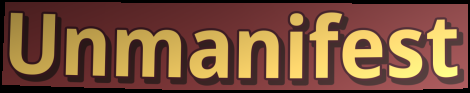
Unmanifest